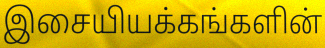
இசையியக்கங்களின்